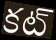
కట్